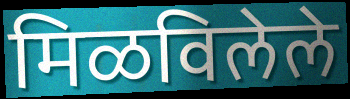
मिळविलेले